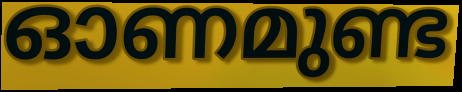
ഓണമുണ്ട